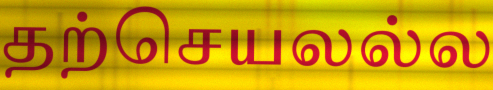
தற்செயலல்ல